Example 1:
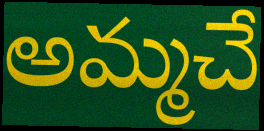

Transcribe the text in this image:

అమ్మచే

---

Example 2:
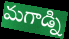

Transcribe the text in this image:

మగాడ్ని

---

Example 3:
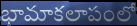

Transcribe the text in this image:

భామాకలాపంలో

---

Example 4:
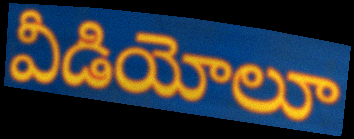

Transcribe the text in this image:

వీడియోలూ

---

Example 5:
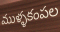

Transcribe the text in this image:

ముళ్ళకంపల